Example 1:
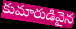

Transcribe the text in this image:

కుమారుడివైన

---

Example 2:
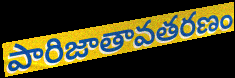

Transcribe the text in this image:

పారిజాతావతరణం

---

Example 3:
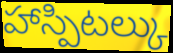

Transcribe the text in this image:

హాస్పిటల్కు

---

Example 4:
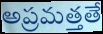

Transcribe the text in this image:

అప్రమత్తతే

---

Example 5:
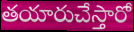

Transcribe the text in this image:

తయారుచేస్తారో